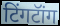
टिंगटॉंग